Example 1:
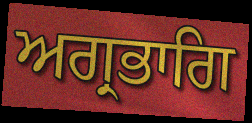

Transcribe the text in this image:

ਅਗ੍ਰਭਾਗਿ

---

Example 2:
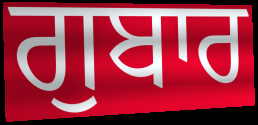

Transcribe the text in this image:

ਗੁਬਾਰ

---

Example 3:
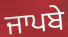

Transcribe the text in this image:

ਜਾਪਬੇ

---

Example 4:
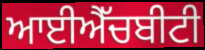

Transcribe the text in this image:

ਆਈਐੱਚਬੀਟੀ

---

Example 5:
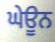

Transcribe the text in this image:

ਘੇਊਨ